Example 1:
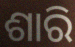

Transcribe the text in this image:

ଶାରି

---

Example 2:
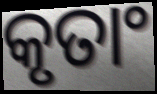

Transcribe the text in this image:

କୃତାଂ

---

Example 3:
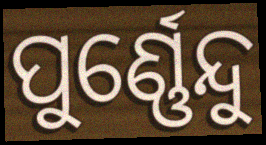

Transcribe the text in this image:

ପୁର୍ଣ୍ଣେନ୍ଦୁ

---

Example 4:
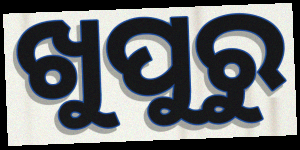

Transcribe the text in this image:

ଖୁପୁରୁ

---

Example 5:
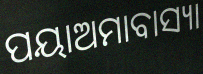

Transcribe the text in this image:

ପୟାଅମାବାସ୍ୟା